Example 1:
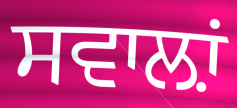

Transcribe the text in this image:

ਸਵਾਲ਼ਾਂ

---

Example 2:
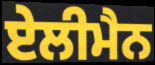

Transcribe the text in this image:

ਏਲੀਮੈਨ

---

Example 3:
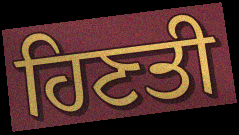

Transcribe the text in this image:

ਹਿਣਤੀ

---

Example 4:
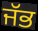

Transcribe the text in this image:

ਜੱਭ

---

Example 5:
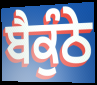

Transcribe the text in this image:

ਬੈਕੁੰਠੇ